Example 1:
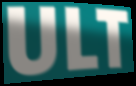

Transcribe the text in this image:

ULT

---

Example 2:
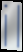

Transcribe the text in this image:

il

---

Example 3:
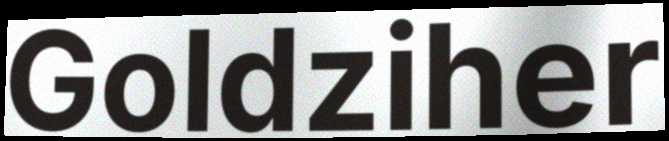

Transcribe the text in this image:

Goldziher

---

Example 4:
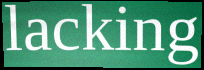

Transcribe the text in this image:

lacking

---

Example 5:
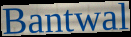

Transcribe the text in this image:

Bantwal